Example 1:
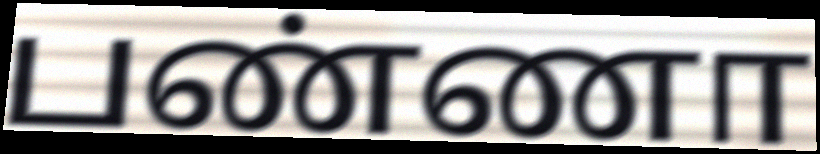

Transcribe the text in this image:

பண்ணா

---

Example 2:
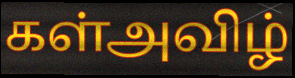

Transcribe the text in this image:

கள்அவிழ்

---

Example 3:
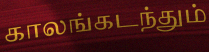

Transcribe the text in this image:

காலங்கடந்தும்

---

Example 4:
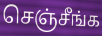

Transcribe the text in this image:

செஞ்சீங்க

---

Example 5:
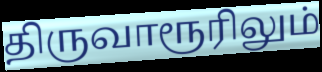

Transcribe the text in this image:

திருவாரூரிலும்